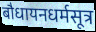
बौधायनधर्मसूत्र